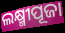
ଲକ୍ଷ୍ମୀପୂଜା